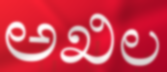
ಅಖಿಲ